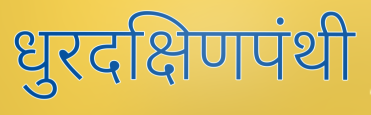
धुरदक्षिणपंथी